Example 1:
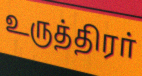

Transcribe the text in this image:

உருத்திரர்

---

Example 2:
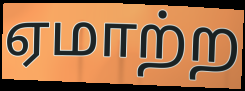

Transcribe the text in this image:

ஏமாற்ற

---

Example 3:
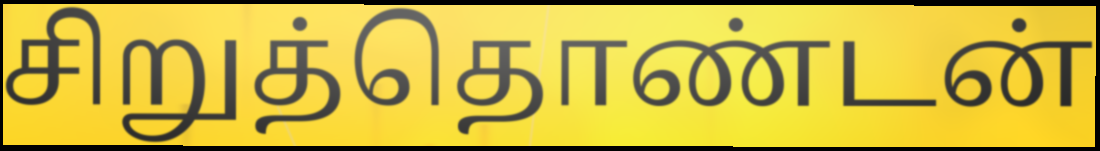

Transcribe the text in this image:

சிறுத்தொண்டன்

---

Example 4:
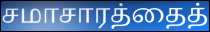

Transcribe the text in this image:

சமாசாரத்தைத்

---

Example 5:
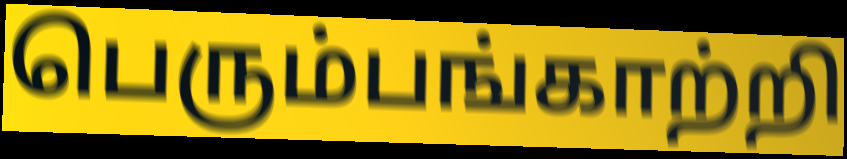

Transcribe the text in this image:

பெரும்பங்காற்றி